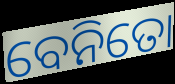
ବେନିତୋ